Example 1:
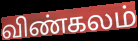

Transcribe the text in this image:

விண்கலம்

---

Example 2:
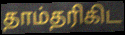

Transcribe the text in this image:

தாம்தரிகிட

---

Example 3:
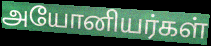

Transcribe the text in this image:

அயோனியர்கள்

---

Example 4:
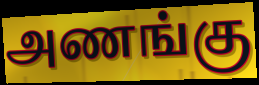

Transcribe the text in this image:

அணங்கு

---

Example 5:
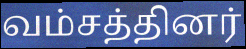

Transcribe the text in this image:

வம்சத்தினர்